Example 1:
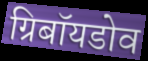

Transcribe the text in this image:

ग्रिबॉयडोव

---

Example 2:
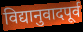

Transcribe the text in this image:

विद्यानुवादपूर्व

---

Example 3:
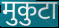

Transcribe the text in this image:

मुकुटा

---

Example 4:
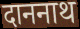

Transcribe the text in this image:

दाननाथ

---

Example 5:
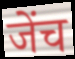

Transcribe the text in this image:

जेंच